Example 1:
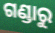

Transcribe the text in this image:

ଗଣ୍ଡାରୁ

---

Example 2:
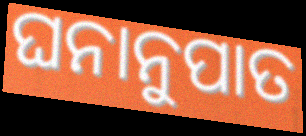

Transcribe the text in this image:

ଘନାନୁପାତ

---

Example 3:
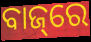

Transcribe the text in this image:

ବାଜ୍‌ରେ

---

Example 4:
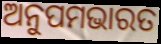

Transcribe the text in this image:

ଅନୁପମଭାରତ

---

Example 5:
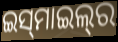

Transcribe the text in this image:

ଇସ୍‌ମାଇଲ୍‌ର